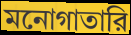
মনোগাতারি